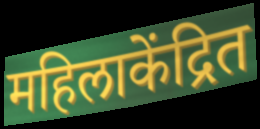
महिलाकेंद्रित